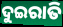
ଦୁଇରାତି